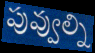
పువ్వుల్ని